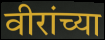
वीरांच्या